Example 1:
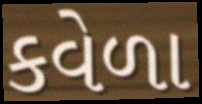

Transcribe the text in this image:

કવેળા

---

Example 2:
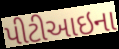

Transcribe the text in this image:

પીટીઆઇના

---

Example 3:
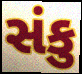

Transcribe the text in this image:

સંકુ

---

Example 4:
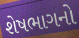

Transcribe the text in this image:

શેષભાગનો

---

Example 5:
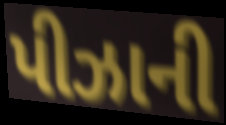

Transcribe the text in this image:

પીઝાની